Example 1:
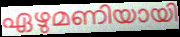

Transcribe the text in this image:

ഏഴുമണിയായി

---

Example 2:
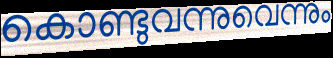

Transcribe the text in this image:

കൊണ്ടുവന്നുവെന്നും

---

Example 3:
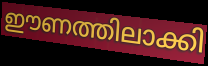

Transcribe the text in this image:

ഈണത്തിലാക്കി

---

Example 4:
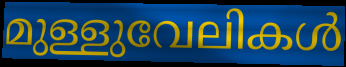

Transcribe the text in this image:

മുള്ളുവേലികൾ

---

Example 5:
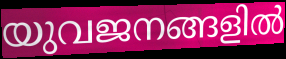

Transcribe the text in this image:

യുവജനങ്ങളിൽ